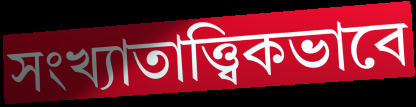
সংখ্যাতাত্ত্বিকভাবে